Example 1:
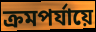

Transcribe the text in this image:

ক্রমপর্যায়ে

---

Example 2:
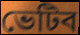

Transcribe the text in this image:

ভেটিব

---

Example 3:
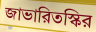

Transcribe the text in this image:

জাভারিতস্কির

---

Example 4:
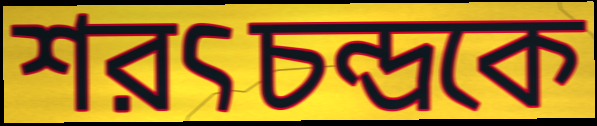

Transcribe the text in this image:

শরৎচন্দ্রকে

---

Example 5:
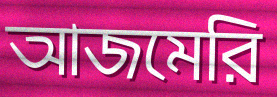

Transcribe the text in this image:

আজমেরি